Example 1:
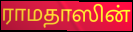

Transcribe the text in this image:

ராமதாஸின்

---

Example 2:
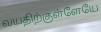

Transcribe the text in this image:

வயதிற்குள்ளேயே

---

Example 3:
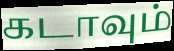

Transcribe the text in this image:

கடாவும்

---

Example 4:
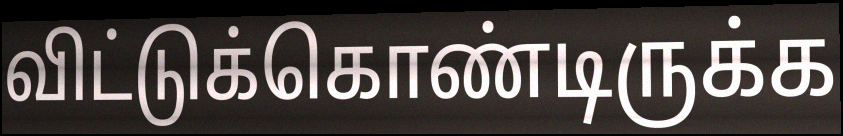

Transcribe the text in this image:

விட்டுக்கொண்டிருக்க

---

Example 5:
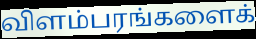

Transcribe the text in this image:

விளம்பரங்களைக்